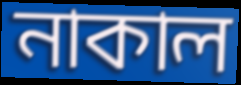
নাকাল